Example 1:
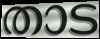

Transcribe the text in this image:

താട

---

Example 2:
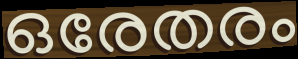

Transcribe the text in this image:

ഒരേതരം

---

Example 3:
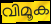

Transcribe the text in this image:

വിമൂക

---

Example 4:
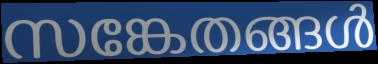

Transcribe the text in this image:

സങ്കേതങ്ങൾ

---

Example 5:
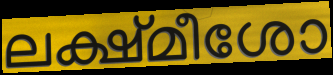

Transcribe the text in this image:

ലക്ഷ്മീശോ